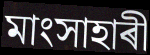
মাংসাহাৰী